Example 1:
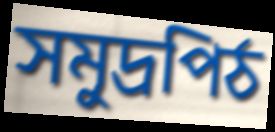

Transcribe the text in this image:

সমুদ্রপিঠ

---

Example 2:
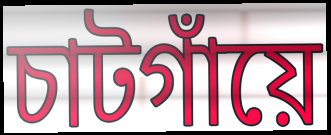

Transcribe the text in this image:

চাটগাঁয়ে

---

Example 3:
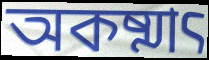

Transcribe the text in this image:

অকষ্মাৎ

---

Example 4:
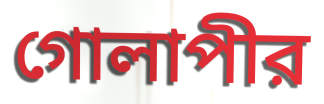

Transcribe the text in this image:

গোলাপীর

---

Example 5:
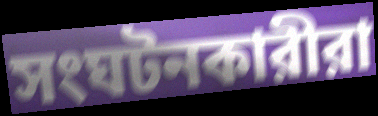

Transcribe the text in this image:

সংঘটনকারীরা